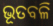
ଭୂତବଳି